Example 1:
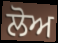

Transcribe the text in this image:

ਲੋਅ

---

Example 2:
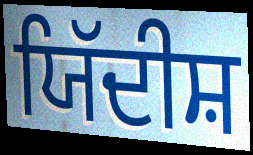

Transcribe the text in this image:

ਯਿੱਦੀਸ਼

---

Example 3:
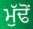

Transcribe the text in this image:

ਮੁੱਢੋਂ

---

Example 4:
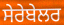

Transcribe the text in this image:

ਸੇਰੇਬੇਲਰ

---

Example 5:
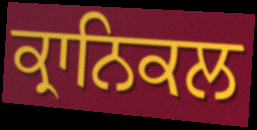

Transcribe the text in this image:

ਕ੍ਰਾਨਿਕਲ